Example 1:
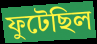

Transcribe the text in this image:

ফুটেছিল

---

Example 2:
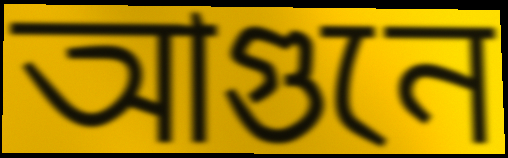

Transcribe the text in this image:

আগুনে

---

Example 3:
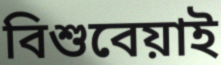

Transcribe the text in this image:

বিশুবেয়াই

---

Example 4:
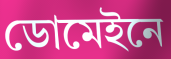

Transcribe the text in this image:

ডোমেইনে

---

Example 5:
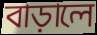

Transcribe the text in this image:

বাড়ালে